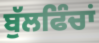
ਬੁੱਲਫਿੰਚਾਂ